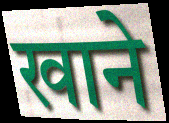
खाने